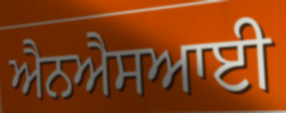
ਐਨਐਸਆਈ